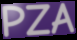
PZA